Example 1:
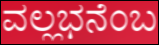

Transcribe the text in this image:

ವಲ್ಲಭನೆಂಬ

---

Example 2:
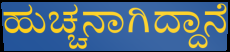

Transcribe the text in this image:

ಹುಚ್ಚನಾಗಿದ್ದಾನೆ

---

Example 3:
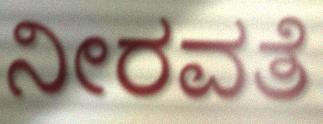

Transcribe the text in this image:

ನೀರವತೆ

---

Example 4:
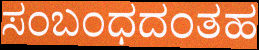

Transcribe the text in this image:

ಸಂಬಂಧದಂತಹ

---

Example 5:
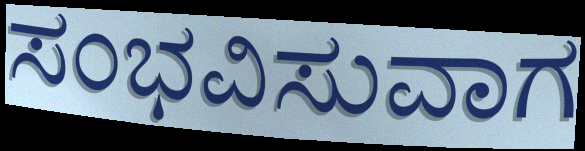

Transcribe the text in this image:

ಸಂಭವಿಸುವಾಗ